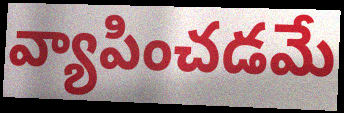
వ్యాపించడమే